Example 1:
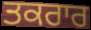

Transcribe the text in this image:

ਤਕਰਾਰ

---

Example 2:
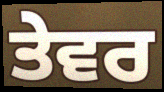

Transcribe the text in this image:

ਤੇਵਰ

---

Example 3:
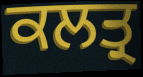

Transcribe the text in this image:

ਕਲਤ੍ਰ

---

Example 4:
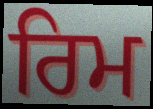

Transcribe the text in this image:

ਰਿਮ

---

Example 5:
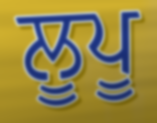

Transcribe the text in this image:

ਲੂਪੂ